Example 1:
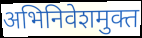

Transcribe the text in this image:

अभिनिवेशमुक्त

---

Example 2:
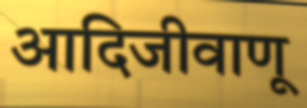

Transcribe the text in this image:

आदिजीवाणू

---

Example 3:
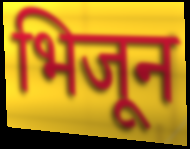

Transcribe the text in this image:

भिजून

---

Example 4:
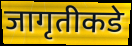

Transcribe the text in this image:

जागृतीकडे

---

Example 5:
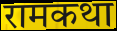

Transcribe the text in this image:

रामकथा